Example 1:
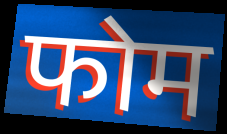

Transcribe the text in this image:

फोम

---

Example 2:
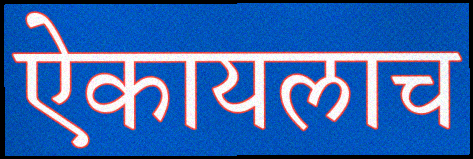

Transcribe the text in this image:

ऐकायलाच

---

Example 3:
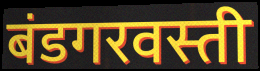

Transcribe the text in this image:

बंडगरवस्ती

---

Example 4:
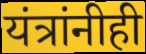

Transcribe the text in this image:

यंत्रांनीही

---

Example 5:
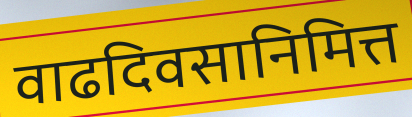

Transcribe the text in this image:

वाढदिवसानिमित्त